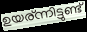
ഉയര്ന്നിട്ടുണ്ട്